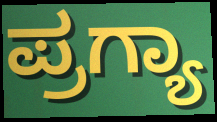
ಪ್ರಗ್ಯಾ